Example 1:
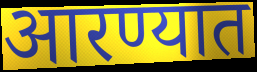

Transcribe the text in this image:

आरण्यात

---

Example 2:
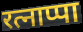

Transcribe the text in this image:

रत्नाप्पा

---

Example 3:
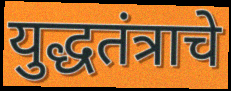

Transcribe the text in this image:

युद्धतंत्राचे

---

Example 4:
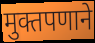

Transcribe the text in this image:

मुक्तपणाने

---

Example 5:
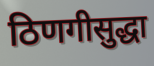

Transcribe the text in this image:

ठिणगीसुद्धा